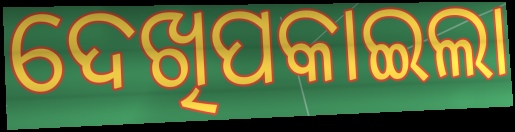
ଦେଖିପକାଇଲା